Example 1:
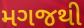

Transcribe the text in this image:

મગજથી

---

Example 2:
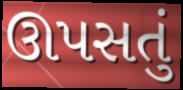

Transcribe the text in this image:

ઊપસતું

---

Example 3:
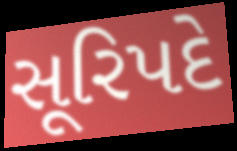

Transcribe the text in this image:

સૂરિપદે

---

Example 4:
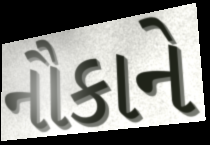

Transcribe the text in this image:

નૌકાને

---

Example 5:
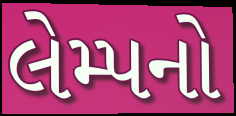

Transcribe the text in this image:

લેમ્પનો